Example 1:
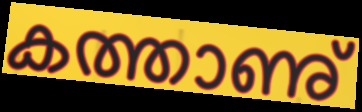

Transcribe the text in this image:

കത്താണു്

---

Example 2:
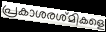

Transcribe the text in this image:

പ്രകാശരശ്മികളെ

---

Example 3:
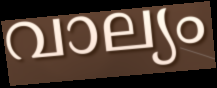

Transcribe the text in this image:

വാല്യം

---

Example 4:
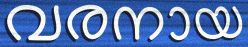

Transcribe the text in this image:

വരനായ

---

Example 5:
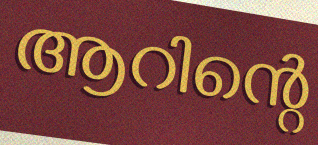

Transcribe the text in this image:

ആറിന്റെ